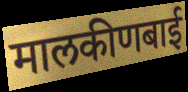
मालकीणबाई